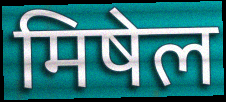
मिषेल